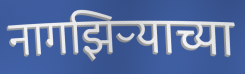
नागझिऱ्याच्या